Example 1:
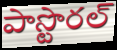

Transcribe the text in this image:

పాస్టొరల్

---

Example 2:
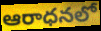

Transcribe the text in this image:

ఆరాధనలో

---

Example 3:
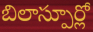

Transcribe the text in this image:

బిలాస్పూర్లో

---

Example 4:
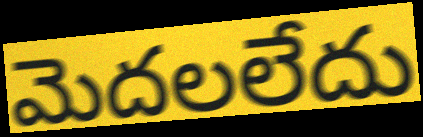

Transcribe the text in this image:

మెదలలేదు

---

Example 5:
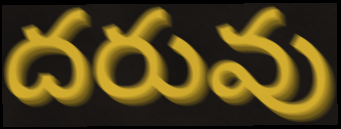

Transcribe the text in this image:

దరువు